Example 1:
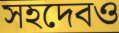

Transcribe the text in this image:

সহদেবও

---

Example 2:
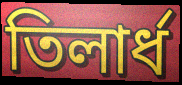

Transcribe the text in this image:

তিলার্ধ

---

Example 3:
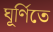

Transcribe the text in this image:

ঘূর্ণিতে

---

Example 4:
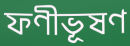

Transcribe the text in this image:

ফণীভূষণ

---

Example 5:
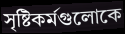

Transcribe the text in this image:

সৃষ্টিকর্মগুলোকে